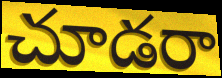
చూడరా